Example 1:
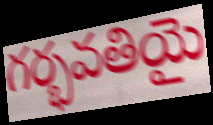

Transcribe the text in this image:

గర్భవతియై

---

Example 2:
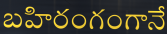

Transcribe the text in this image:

బహిరంగంగానే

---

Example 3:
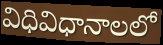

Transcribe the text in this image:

విధివిధానాలలో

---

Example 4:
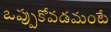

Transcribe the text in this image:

ఒప్పుకోవడమంటే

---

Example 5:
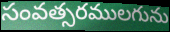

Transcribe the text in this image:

సంవత్సరములగును